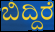
ಬಿದ್ದಿರೆ